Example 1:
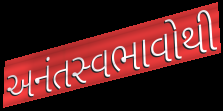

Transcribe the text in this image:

અનંતસ્વભાવોથી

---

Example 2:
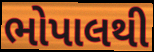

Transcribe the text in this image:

ભોપાલથી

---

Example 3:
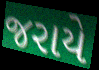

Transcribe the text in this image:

જરાયે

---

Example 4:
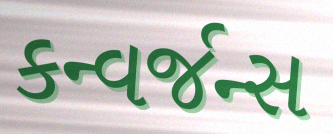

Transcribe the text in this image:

કન્વર્જન્સ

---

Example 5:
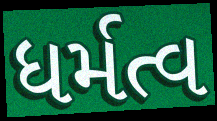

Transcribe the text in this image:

ધર્મત્વ